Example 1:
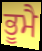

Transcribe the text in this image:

ਭੂਮੈ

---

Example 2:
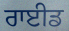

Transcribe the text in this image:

ਰਾਈਡ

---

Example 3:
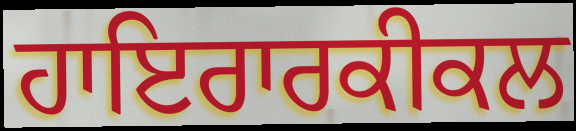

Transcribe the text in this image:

ਹਾਇਰਾਰਕੀਕਲ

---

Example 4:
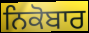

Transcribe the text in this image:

ਨਿਕੋਬਾਰ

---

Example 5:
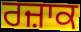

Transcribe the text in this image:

ਰਜ਼ਾਕ